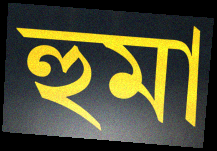
হুমা